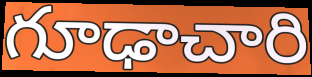
గూఢాచారి